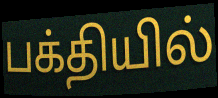
பக்தியில்